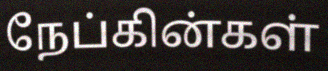
நேப்கின்கள்